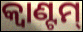
କ୍ୱାଣ୍ଟମ୍